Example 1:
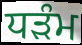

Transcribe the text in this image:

ਧੜੰਮ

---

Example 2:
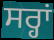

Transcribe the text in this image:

ਸਰ੍ਹਾਂ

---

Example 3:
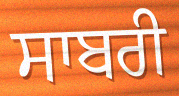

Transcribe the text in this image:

ਸਾਬਰੀ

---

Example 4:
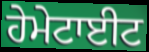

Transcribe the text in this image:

ਹੇਮੇਟਾਈਟ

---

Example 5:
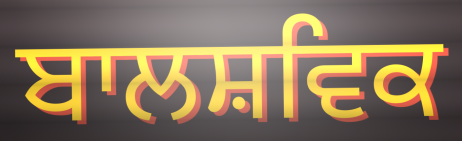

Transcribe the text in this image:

ਬਾਲਸ਼ਵਿਕ